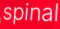
spinal